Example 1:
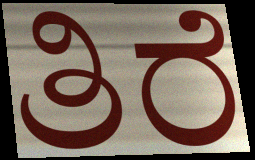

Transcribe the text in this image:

ತಿರೆ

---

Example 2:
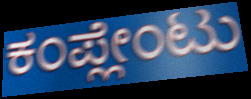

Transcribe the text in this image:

ಕಂಪ್ಲೇಂಟು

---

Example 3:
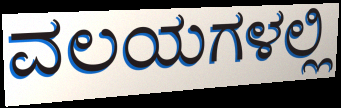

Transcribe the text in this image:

ವಲಯಗಳಲ್ಲಿ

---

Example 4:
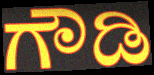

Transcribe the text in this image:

ಗೌಡಿ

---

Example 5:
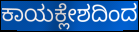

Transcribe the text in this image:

ಕಾಯಕ್ಲೇಶದಿಂದ